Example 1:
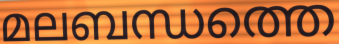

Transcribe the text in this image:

മലബന്ധത്തെ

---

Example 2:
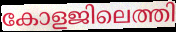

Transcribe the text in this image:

കോളജിലെത്തി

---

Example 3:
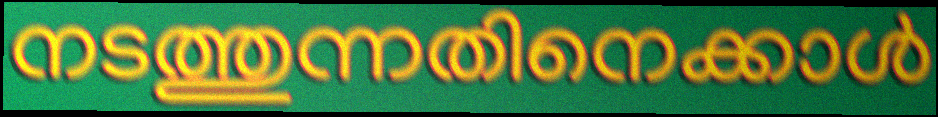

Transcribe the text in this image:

നടത്തുന്നതിനെക്കാൾ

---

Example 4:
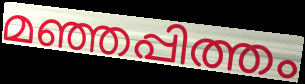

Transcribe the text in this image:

മഞ്ഞപ്പിത്തം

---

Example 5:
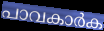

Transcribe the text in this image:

പാവകാർക